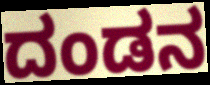
ದಂಡನ